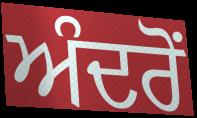
ਅੰਦਰੋਂ